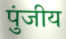
पुंजीय